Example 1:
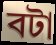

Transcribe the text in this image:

বটা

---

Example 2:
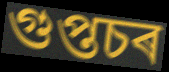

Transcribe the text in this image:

গুপ্তচৰ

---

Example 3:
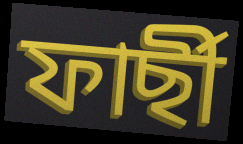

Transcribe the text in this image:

ফাৰ্ছী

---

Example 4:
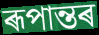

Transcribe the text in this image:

ৰূপান্তৰ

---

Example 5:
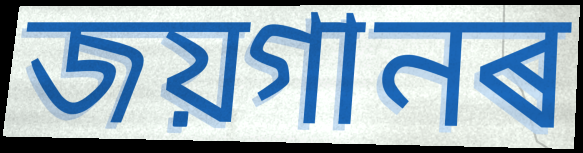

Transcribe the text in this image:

জয়গানৰ